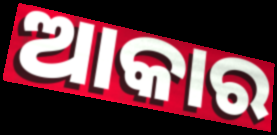
ଆକାର